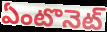
ఏంటొనెట్